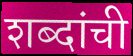
शब्दांची